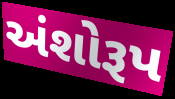
અંશોરૂપ